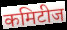
कमिटीज